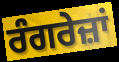
ਰੰਗਰੇਜ਼ਾਂ